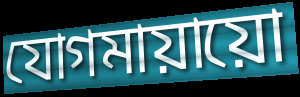
যোগমায়ায়ো